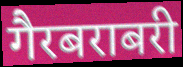
गैरबराबरी